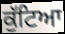
ਕੁੱਟਿਆ